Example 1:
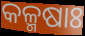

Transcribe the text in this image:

କଳ୍ମଷାଃ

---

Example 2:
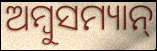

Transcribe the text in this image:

ଅମ୍ବୁସମ୍ୟାନ୍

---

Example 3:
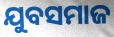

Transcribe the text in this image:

ଯୁବସମାଜ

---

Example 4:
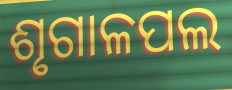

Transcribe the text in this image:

ଶୃଗାଳପଲ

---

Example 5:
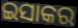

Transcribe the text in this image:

ଇସାକର